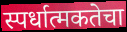
स्पर्धात्मकतेचा